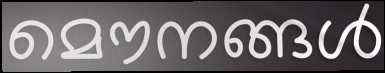
മൌനങ്ങൾ